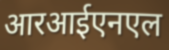
आरआईएनएल